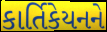
કાર્તિકેયનને